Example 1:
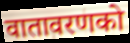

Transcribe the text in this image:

वातावरणको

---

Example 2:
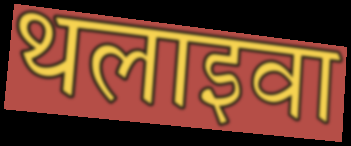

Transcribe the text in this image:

थलाइवा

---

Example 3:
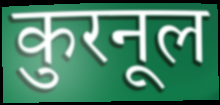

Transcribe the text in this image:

कुरनूल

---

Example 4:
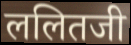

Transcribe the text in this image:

ललितजी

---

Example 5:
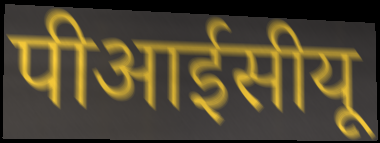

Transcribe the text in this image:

पीआईसीयू